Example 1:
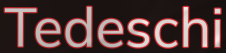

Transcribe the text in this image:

Tedeschi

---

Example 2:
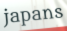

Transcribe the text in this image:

japans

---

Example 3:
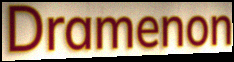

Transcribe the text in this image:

Dramenon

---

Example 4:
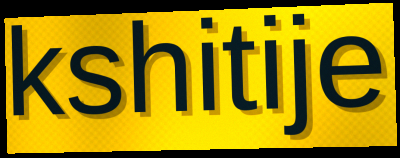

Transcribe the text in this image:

kshitije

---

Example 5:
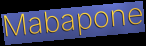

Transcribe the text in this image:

Mabapone